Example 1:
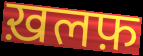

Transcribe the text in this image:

ख़लफ़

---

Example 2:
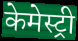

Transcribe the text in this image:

केमेस्ट्री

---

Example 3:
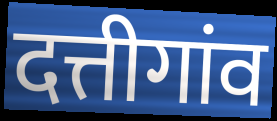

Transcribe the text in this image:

दत्तीगांव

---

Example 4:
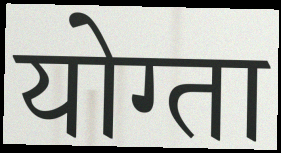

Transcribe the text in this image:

योग्ता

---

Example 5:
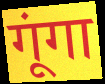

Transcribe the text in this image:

गूंगा